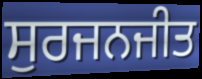
ਸੁਰਜਨਜੀਤ